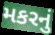
મકરનું